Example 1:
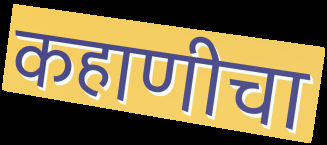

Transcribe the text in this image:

कहाणीचा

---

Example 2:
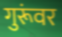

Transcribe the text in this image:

गुरूंवर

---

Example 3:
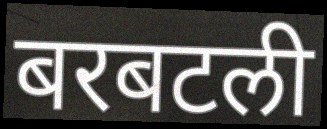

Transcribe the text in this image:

बरबटली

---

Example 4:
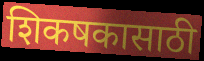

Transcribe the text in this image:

शिकषकासाठी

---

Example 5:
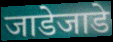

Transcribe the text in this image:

जाडेजाडे